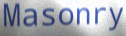
Masonry